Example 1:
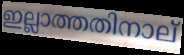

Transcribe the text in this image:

ഇല്ലാത്തതിനാല്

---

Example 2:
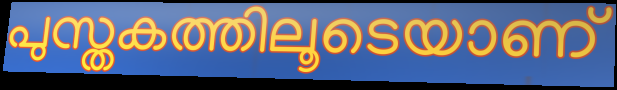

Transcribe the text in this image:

പുസ്തകത്തിലൂടെയാണ്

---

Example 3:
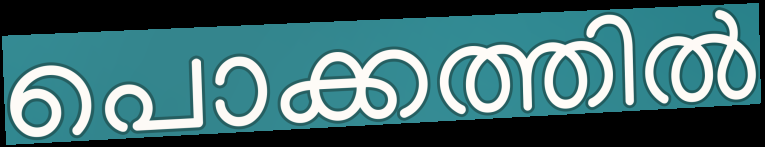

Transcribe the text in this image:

പൊക്കത്തിൽ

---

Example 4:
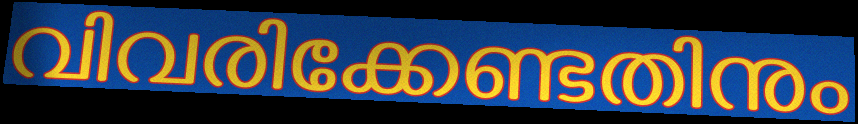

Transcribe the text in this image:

വിവരിക്കേണ്ടതിനും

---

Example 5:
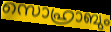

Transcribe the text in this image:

സൊഹ്രാബും